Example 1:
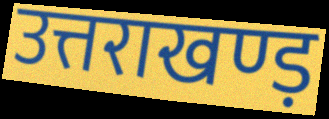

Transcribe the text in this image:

उत्तराखण्ड़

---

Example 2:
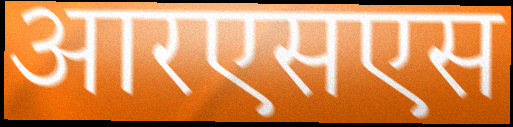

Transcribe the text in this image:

आरएसएस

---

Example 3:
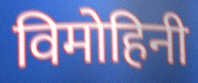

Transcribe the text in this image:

विमोहिनी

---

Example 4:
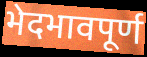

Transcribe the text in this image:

भेदभावपूर्ण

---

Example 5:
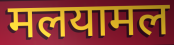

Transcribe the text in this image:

मलयामल